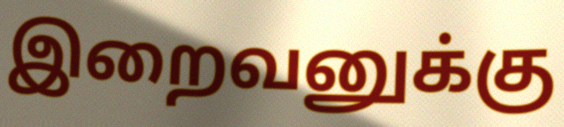
இறைவனுக்கு